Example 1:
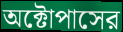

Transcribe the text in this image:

অক্টোপাসের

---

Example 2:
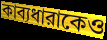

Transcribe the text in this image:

কাব্যধারাকেও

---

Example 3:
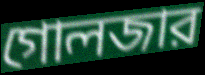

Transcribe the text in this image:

গোলজার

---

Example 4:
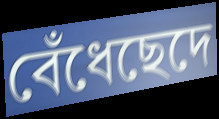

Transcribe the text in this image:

বেঁধেছেদে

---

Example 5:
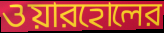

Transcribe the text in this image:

ওয়ারহোলের